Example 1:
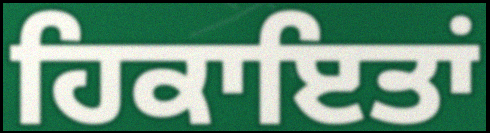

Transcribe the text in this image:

ਹਿਕਾਇਤਾਂ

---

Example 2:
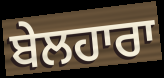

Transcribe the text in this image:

ਬੇਲਹਾਰਾ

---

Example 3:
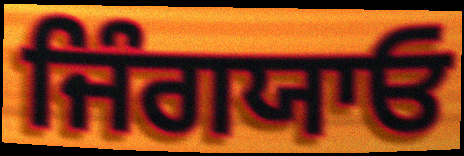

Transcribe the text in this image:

ਜਿੰਗਯਾਓ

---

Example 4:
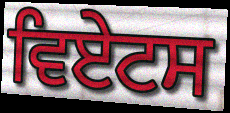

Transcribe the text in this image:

ਵਿਏਟਸ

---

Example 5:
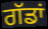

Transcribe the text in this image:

ਗੱਡਾਂ